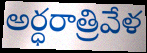
అర్ధరాత్రివేళ